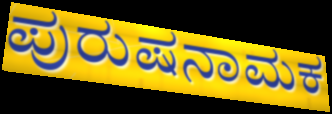
ಪುರುಷನಾಮಕ